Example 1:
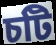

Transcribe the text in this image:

চটি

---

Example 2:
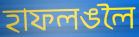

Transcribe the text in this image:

হাফলঙলৈ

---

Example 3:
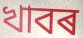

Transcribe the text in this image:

খাবৰ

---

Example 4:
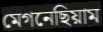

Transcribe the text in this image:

মেগনেছিয়াম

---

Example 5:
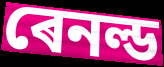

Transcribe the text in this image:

ৰেনল্ড